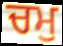
ਚਮੁ